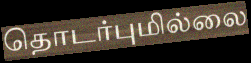
தொடர்புமில்லை